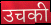
उचकी